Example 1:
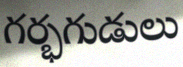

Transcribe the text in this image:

గర్భగుడులు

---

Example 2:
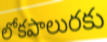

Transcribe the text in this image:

లోకపాలురకు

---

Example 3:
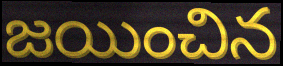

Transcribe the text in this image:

జయించిన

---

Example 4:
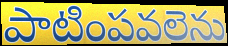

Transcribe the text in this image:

పాటింపవలెను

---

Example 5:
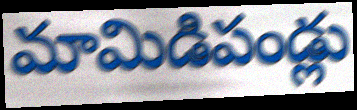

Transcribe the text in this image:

మామిడిపండ్లు